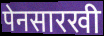
पेनसारखी